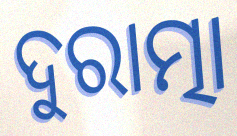
ଦୁରାତ୍ମା